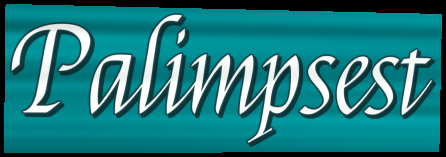
Palimpsest